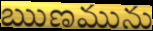
ఋణమును